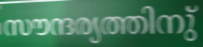
സൗന്ദര്യത്തിനു്